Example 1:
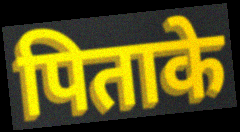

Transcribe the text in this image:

पिताके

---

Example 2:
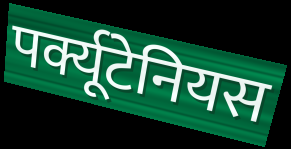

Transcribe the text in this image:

पर्क्यूटेनियस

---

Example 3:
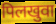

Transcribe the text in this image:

पिलखुवा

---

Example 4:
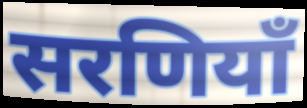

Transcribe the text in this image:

सरणियाँ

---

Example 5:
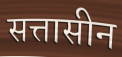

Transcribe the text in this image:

सत्तासीन